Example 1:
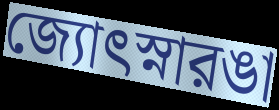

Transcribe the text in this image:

জ্যোৎস্নারঙা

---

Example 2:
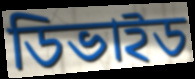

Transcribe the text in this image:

ডিভাইড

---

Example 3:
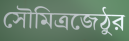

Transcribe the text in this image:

সৌমিত্রজেঠুর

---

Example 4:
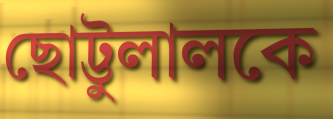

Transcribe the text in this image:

ছোট্টুলালকে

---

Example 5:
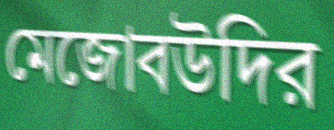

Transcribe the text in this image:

মেজোবউদির